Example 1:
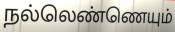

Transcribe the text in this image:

நல்லெண்ணெயும்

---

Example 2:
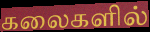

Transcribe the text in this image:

கலைகளில்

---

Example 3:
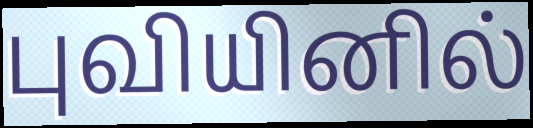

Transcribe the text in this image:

புவியினில்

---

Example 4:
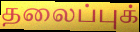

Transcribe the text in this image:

தலைப்புக்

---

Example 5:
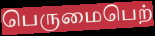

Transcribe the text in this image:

பெருமைபெற்